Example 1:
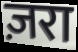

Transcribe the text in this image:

ज़रा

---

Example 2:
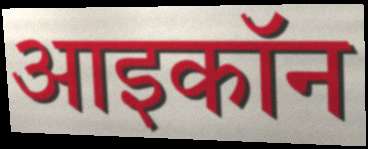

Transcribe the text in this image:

आइकॉन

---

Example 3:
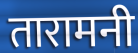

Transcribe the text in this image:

तारामनी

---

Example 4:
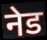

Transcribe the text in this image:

नेड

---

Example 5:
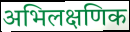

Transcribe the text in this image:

अभिलक्षणिक